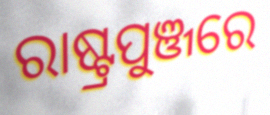
ରାଷ୍ଟ୍ରପୁଞ୍ଜରେ